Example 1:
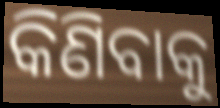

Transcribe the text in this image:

କିଣିବାକୁ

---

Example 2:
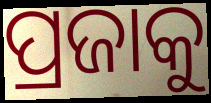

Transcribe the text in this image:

ପ୍ରଜାକୁ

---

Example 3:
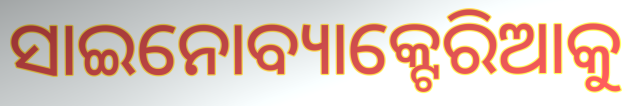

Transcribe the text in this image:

ସାଇନୋବ୍ୟାକ୍ଟେରିଆକୁ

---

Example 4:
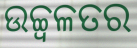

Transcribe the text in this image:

ଉଚ୍ଚ୍ୱଳତର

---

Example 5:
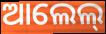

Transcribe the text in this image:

ଆଲେଲ୍